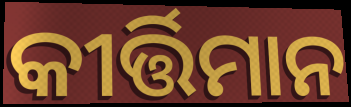
କୀର୍ତ୍ତିମାନ